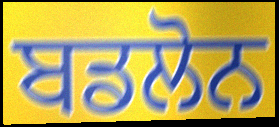
ਬਡਲੋਨ